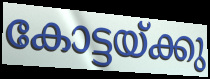
കോട്ടയ്ക്കു